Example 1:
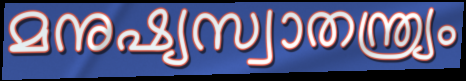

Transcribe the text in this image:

മനുഷ്യസ്വാതന്ത്ര്യം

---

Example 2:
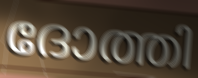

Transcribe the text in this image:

ദോത്തി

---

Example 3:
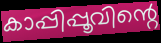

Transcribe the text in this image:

കാപ്പിപ്പൂവിന്റെ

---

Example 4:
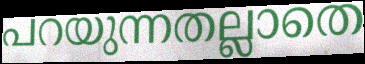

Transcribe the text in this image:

പറയുന്നതല്ലാതെ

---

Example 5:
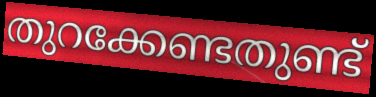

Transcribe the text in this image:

തുറക്കേണ്ടതുണ്ട്